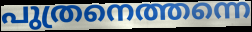
പുത്രനെത്തന്നെ